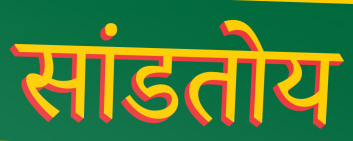
सांडतोय